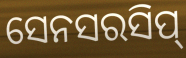
ସେନସରସିପ୍